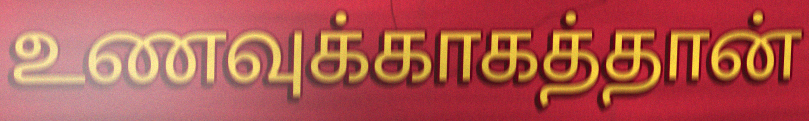
உணவுக்காகத்தான்